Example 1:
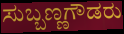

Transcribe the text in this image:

ಸುಬ್ಬಣ್ಣಗೌಡರು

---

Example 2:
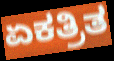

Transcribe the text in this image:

ಏಕತ್ರಿತ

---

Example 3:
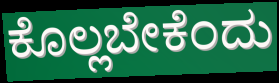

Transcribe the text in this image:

ಕೊಲ್ಲಬೇಕೆಂದು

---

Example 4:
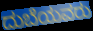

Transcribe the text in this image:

ದುಬೆಯವರು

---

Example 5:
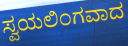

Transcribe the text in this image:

ಸ್ವಯಲಿಂಗವಾದ